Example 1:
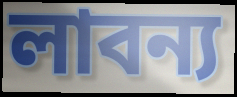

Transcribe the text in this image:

লাবন্য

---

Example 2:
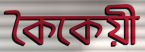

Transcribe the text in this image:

কৈকেয়ী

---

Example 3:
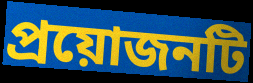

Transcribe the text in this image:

প্রয়োজনটি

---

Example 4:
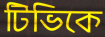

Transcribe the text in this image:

টিভিকে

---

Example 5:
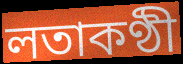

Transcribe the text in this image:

লতাকণ্ঠী